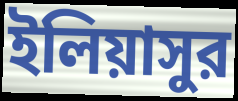
ইলিয়াসুর